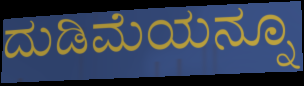
ದುಡಿಮೆಯನ್ನೂ